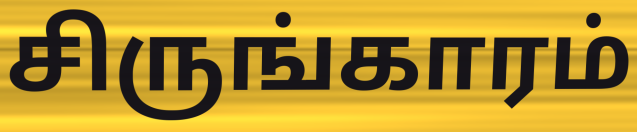
சிருங்காரம்